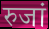
रुजां